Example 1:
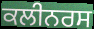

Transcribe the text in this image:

ਕਲੀਨਰਸ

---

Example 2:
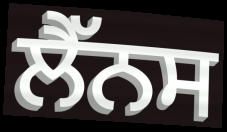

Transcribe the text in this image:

ਲੈੱਨਸ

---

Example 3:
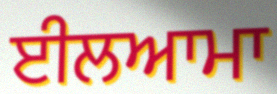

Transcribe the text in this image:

ਈਲਆਮਾ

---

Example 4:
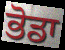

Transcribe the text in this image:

ਭੋਡਾ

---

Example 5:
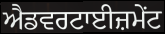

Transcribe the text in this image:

ਐਡਵਰਟਾਈਜ਼ਮੇਂਟ